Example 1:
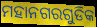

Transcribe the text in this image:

ମହାନଗରଗୁଡିକ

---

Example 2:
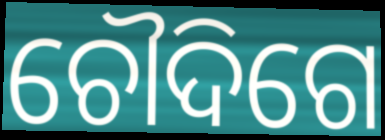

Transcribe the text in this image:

ଚୌଦିଗେ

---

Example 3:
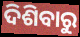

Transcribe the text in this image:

ଦିଶିବାରୁ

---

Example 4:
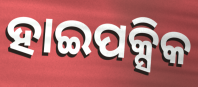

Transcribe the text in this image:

ହାଇପକ୍ସିକ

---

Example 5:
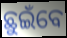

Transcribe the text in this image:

ଛୁଇଁବେ